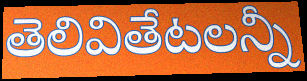
తెలివితేటలన్నీ